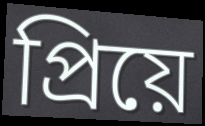
প্রিয়ে